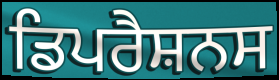
ਡਿਪਰੈਸ਼ਨਸ